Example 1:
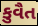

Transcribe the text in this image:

કુવૈત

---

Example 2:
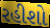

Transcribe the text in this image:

રહીશો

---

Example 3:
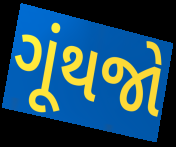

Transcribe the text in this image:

ગૂંથજો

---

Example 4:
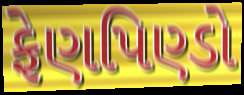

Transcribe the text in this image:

ફેણપિણ્ડો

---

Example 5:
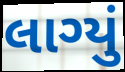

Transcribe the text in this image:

લાગ્યું